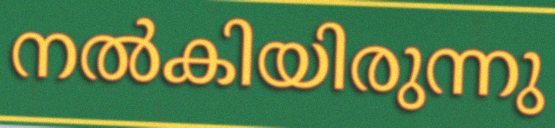
നൽകിയിരുന്നു